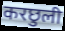
करछुली